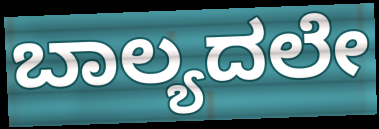
ಬಾಲ್ಯದಲೇ